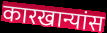
कारखान्यांस